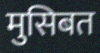
मुसिबत